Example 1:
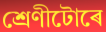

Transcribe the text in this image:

শ্ৰেণীটোৰে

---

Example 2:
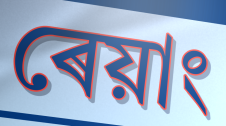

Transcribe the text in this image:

ৰেয়াং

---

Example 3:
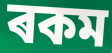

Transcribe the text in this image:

ৰকম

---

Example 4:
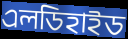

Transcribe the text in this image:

এলডিহাইড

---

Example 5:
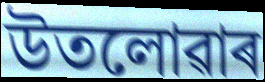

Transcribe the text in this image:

উতলোৱাৰ